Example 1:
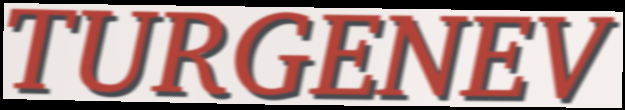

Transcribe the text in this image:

TURGENEV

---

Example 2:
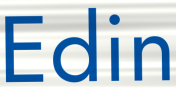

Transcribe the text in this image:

Edin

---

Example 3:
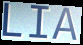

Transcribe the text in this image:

LIA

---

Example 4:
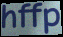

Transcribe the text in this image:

hffp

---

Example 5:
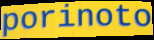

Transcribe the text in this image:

porinoto